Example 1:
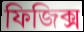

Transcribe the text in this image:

ফিজিক্স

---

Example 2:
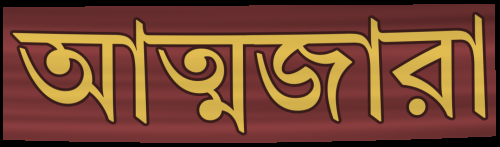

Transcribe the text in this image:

আত্মজারা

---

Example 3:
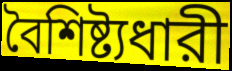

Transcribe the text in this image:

বৈশিষ্ট্যধারী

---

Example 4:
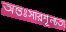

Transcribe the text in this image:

অন্তঃসারশূন্যতা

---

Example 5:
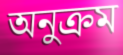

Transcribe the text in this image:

অনুক্রম